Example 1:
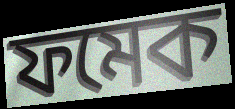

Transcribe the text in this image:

ফমেক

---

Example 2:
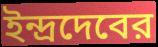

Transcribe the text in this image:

ইন্দ্রদেবের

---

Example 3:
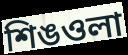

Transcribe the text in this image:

শিঙওলা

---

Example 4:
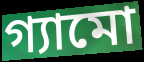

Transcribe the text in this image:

গ্যামো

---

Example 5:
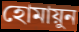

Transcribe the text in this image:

হোমায়ুন